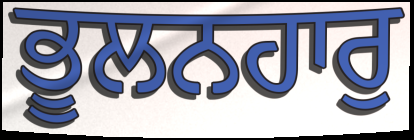
ਭੂਲਨਹਾਰੁ